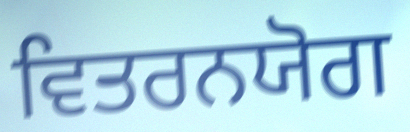
ਵਿਤਰਨਯੋਗ